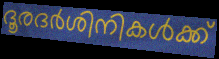
ദൂരദർശിനികൾക്ക്